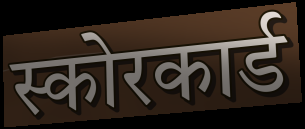
स्कोरकार्ड